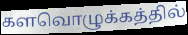
களவொழுக்கத்தில்